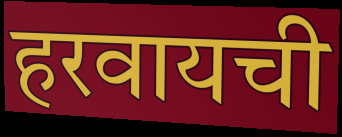
हरवायची